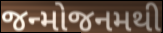
જન્મોજનમથી